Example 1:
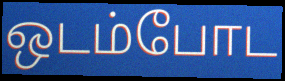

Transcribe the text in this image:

ஒடம்போட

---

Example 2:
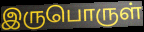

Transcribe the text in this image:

இருபொருள்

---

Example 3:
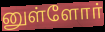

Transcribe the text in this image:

னுள்ளோர்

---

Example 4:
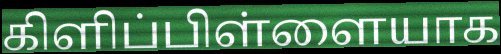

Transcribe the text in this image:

கிளிப்பிள்ளையாக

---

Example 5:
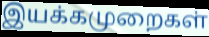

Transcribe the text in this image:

இயக்கமுறைகள்